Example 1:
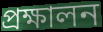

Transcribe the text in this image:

প্রক্ষালন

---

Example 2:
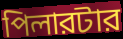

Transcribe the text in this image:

পিলারটার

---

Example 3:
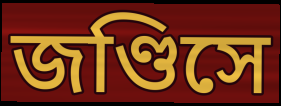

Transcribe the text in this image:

জণ্ডিসে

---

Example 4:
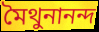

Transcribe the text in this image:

মৈথুনানন্দ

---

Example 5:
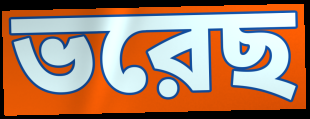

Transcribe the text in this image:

ভরেছ